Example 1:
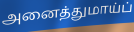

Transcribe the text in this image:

அனைத்துமாய்ப்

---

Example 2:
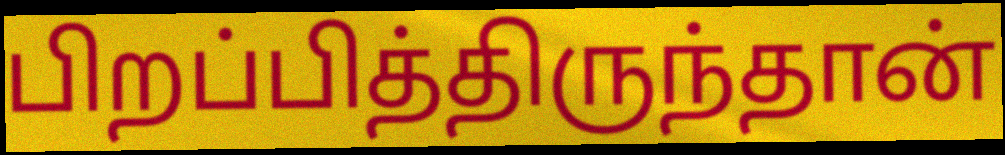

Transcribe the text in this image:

பிறப்பித்திருந்தான்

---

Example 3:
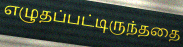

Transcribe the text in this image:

எழுதப்பட்டிருந்ததை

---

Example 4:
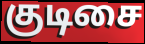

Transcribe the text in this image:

குடிசை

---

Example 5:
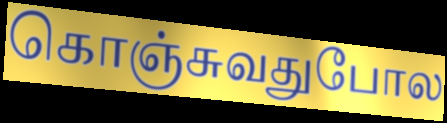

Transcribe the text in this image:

கொஞ்சுவதுபோல